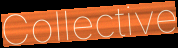
Collective